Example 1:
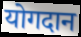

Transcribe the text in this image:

योगदान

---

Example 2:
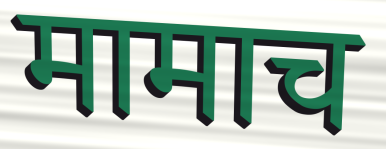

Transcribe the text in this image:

मामाच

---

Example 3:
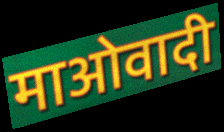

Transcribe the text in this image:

माओवादी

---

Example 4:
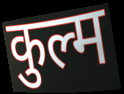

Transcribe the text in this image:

कुल्म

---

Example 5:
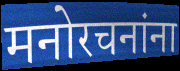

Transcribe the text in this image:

मनोरचनांना